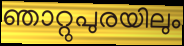
ഞാറ്റുപുരയിലും